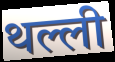
थल्ली